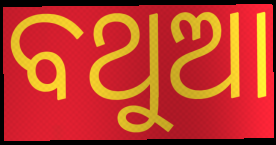
ବଥୁଆ